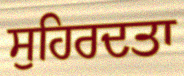
ਸੁਹਿਰਦਤਾ